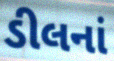
ડીલનાં